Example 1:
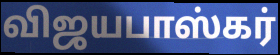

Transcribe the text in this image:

விஜயபாஸ்கர்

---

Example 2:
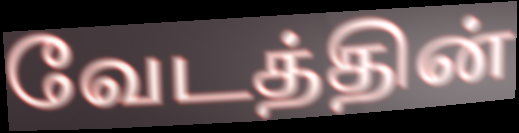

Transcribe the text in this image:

வேடத்தின்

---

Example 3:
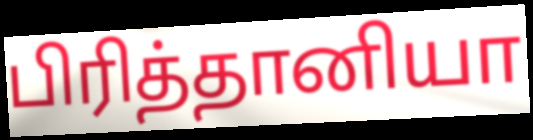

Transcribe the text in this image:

பிரித்தானியா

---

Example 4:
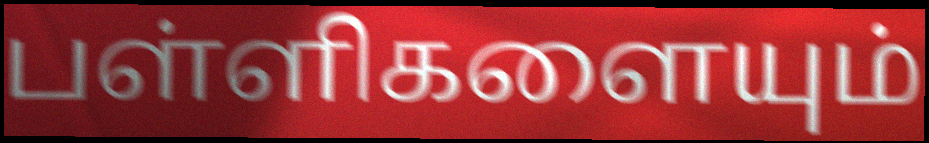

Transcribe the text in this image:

பள்ளிகளையும்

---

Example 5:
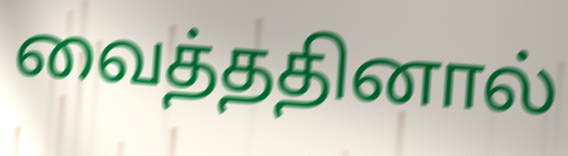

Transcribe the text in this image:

வைத்ததினால்